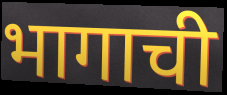
भागाची